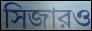
সিজারও